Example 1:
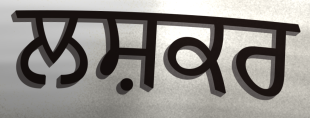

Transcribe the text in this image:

ਲਸ਼ਕਰ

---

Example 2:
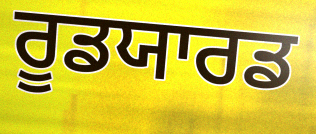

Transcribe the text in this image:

ਰੂਡਯਾਰਡ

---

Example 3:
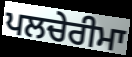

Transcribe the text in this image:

ਪਲਚੇਰੀਮਾ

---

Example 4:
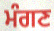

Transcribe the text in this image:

ਮੰਗਣ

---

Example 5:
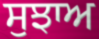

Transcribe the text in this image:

ਸੁਝਾਅ